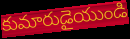
కుమారుడైయుండి